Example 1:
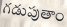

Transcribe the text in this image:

గడుపుతాం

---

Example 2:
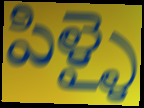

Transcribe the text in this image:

పిళ్ళై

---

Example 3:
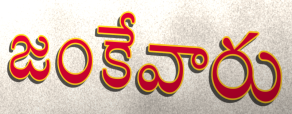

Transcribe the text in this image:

జంకేవారు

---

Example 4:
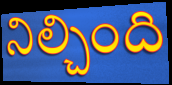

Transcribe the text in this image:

నిల్చింది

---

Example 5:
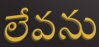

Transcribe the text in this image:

లేవను